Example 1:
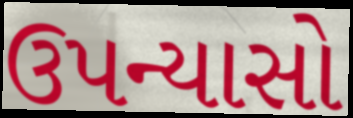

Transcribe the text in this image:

ઉપન્યાસો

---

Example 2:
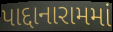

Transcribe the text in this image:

પાદ્દાનારામમાં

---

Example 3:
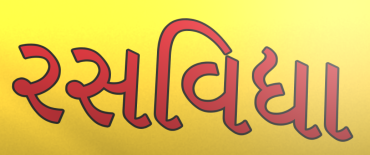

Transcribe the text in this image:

રસવિદ્યા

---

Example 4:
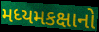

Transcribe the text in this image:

મધ્યમકક્ષાનો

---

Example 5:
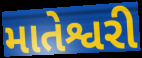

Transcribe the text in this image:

માતેશ્વરી